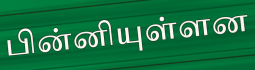
பின்னியுள்ளன